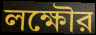
লক্ষৌর